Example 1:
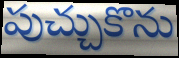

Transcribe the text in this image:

పుచ్చుకొను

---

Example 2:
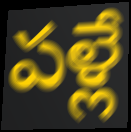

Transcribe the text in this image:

పళ్లే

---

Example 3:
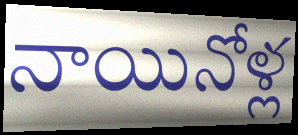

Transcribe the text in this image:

నాయినోళ్ల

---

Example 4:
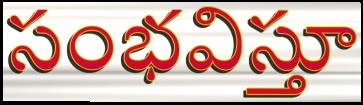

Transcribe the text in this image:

సంభవిస్తూ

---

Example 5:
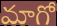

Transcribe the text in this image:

మాగో